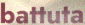
battuta